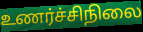
உணர்ச்சிநிலை